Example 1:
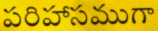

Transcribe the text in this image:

పరిహాసముగా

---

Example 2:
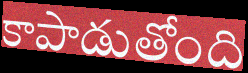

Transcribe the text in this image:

కాపాడుతోంది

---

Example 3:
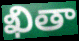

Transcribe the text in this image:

ఖితా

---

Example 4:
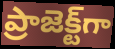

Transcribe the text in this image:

ప్రాజెక్ట్‌గా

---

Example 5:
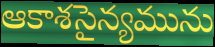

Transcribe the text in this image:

ఆకాశసైన్యమును